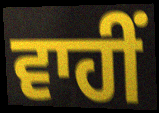
ਵਾਹੀਂ